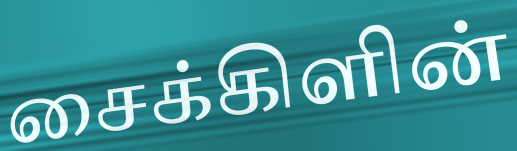
சைக்கிளின்